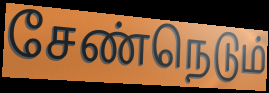
சேண்நெடும்